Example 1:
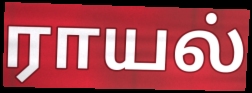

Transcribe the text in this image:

ராயல்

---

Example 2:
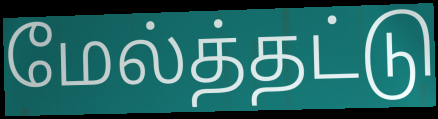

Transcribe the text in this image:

மேல்த்தட்டு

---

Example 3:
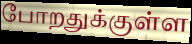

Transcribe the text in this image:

போறதுக்குள்ள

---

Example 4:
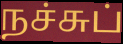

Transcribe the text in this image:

நச்சுப்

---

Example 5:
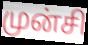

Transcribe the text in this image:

முன்சி